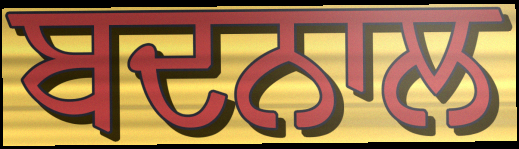
ਬਦਨਾਲ